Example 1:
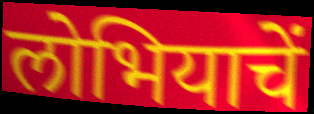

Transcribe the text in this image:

लोभियाचें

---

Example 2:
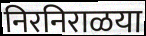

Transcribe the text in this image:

निरनिराळया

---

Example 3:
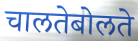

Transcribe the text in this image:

चालतेबोलते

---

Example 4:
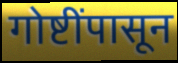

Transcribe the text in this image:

गोष्टींपासून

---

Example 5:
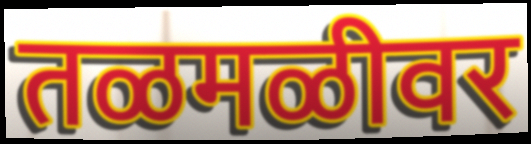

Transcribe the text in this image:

तळमळीवर